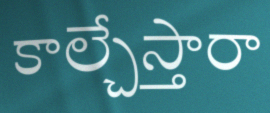
కాల్చేస్తారా